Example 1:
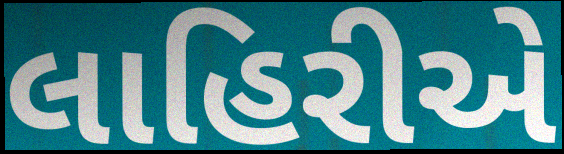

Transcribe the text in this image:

લાહિરીએ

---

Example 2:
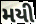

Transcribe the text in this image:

મયી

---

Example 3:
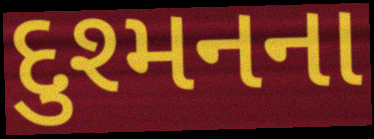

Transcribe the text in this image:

દુશ્મનના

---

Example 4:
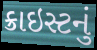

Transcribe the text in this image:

ક્રાઇસ્ટનું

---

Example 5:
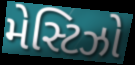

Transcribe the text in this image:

મેસ્ટિઝો